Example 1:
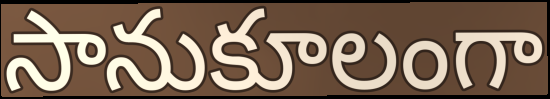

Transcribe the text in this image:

సానుకూలంగా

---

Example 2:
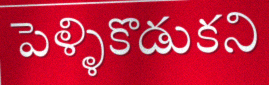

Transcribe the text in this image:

పెళ్ళికొడుకని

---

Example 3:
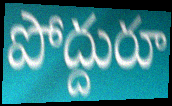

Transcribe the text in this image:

పోద్దురూ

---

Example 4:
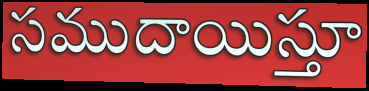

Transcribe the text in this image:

సముదాయిస్తూ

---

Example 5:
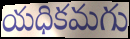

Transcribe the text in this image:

యధికమగు